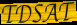
TDSAT